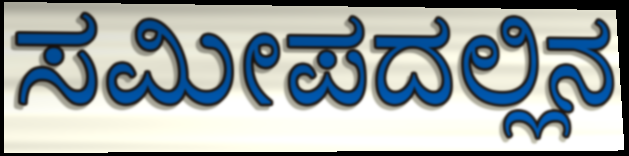
ಸಮೀಪದಲ್ಲಿನ